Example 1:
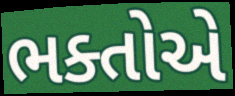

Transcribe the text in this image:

ભક્તોએ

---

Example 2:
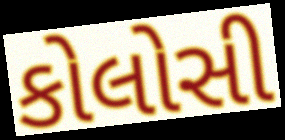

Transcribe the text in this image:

કોલોસી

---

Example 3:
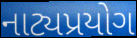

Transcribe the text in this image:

નાટ્યપ્રયોગ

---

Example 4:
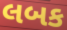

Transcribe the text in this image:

લબક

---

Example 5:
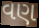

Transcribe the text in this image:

વણ